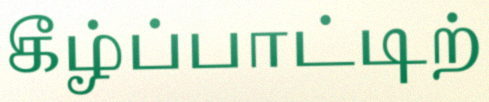
கீழ்ப்பாட்டிற்